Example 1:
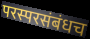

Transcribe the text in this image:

परस्परसंबंधच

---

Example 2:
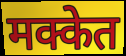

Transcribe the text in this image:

मक्केत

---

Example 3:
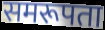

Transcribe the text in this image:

समरूपता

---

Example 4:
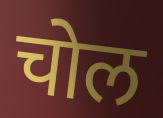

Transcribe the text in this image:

चोल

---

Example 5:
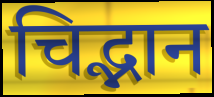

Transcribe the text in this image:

चिद्भान